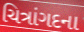
ચિત્રાંગદના